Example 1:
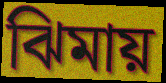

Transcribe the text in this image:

ঝিমায়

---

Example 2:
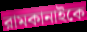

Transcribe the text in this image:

রামকানাইকে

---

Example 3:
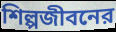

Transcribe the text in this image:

শিল্পজীবনের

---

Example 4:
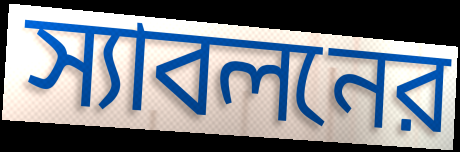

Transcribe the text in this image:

স্যাবলনের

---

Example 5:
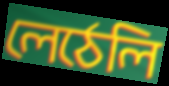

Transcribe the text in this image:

লেঠেলি